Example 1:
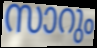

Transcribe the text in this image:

സാറും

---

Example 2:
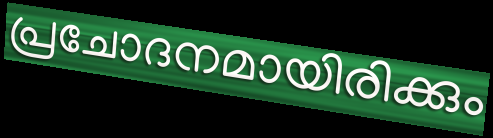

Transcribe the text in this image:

പ്രചോദനമായിരിക്കും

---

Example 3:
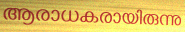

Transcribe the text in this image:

ആരാധകരായിരുന്നു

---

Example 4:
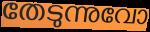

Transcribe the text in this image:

തേടുന്നുവോ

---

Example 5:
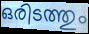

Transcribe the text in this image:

ഒരിടത്തും